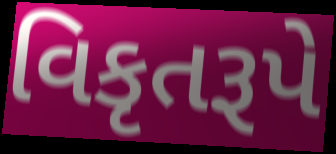
વિકૃતરૂપે